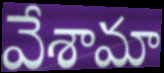
వేశామా